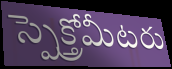
స్పెక్త్రోమీటరు